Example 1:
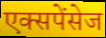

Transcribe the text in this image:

एक्सपेंसेज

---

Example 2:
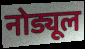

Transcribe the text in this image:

नोड्यूल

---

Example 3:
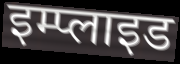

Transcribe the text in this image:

इम्प्लाइड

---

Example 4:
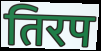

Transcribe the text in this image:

तिरप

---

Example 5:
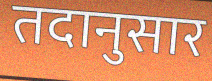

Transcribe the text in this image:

तदानुसार